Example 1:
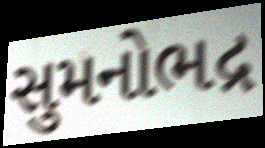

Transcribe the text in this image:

સુમનોભદ્ર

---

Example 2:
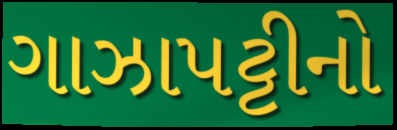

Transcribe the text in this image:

ગાઝાપટ્ટીનો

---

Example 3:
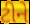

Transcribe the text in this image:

ટીને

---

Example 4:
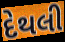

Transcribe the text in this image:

દેથલી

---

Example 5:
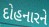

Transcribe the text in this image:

દોહનારને